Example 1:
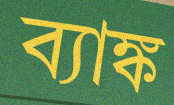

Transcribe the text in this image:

ব্যাঙ্ক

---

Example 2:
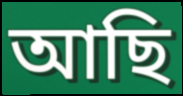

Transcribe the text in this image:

আছি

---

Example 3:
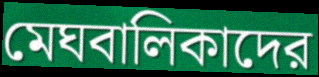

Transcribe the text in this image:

মেঘবালিকাদের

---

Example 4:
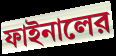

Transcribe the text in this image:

ফাইনালের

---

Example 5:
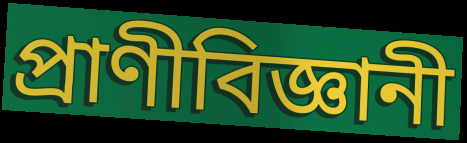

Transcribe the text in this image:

প্রাণীবিজ্ঞানী